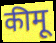
कीमू